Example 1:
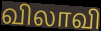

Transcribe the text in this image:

விலாவி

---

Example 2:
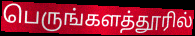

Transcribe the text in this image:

பெருங்களத்தூரில்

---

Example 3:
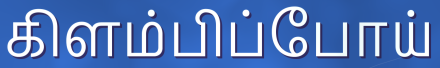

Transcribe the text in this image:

கிளம்பிப்போய்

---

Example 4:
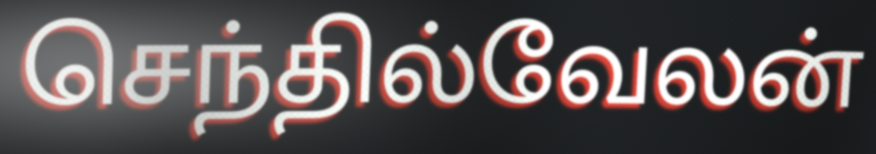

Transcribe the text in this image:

செந்தில்வேலன்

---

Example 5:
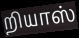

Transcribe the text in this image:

றியாஸ்